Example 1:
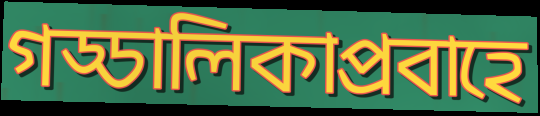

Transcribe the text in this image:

গড্ডালিকাপ্রবাহে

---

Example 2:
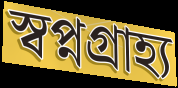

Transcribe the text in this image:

স্বপ্নগ্রাহ্য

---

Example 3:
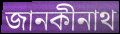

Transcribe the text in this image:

জানকীনাথ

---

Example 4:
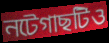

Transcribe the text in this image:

নটেগাছটিও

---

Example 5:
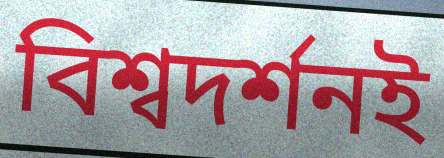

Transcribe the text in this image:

বিশ্বদর্শনই